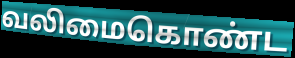
வலிமைகொண்ட